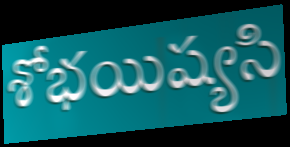
శోభయిష్యసి